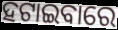
ହଟାଇବାରେ